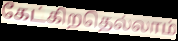
கேட்கிறதெல்லாம்